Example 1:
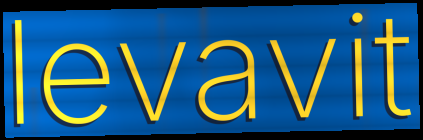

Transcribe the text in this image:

levavit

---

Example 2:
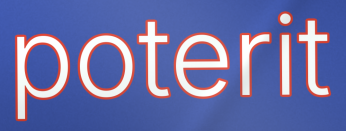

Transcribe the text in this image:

poterit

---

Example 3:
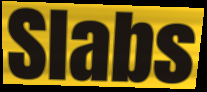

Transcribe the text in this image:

Slabs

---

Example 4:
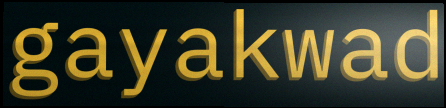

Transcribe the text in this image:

gayakwad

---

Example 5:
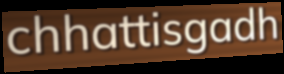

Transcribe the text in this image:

chhattisgadh